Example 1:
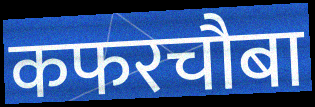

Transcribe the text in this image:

कफरचौबा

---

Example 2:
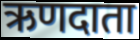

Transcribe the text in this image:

ऋणदाता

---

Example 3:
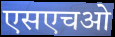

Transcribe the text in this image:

एसएचओ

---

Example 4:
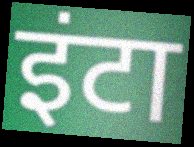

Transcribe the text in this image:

इंटा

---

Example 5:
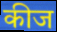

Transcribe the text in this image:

कीज